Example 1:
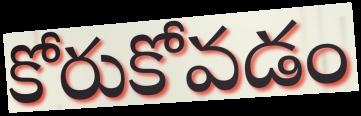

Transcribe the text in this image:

కోరుకోవడం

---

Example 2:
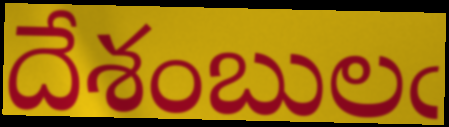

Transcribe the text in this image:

దేశంబులఁ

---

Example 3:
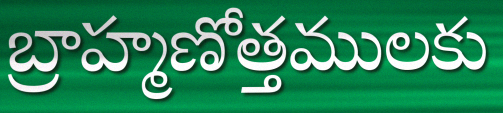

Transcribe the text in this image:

బ్రాహ్మణోత్తములకు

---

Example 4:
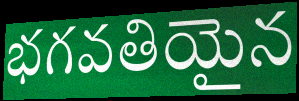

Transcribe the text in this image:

భగవతియైన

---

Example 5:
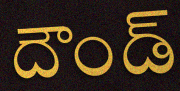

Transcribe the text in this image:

దౌండ్